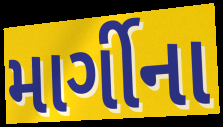
માર્ગીના